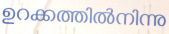
ഉറക്കത്തിൽനിന്നു